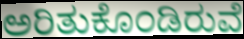
ಅರಿತುಕೊಂಡಿರುವೆ